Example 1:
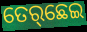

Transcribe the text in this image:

ତେର୍‌ଛେଇ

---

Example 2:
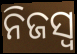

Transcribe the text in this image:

ନିଜସ୍ଵ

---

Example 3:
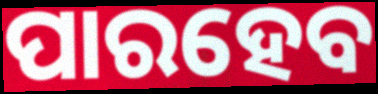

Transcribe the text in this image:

ପାରହେବ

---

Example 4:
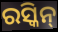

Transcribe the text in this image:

ରସ୍କିନ୍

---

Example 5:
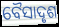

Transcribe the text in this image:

ବୈସାଦୃଶ